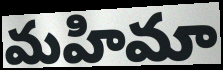
మహిమా